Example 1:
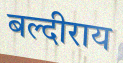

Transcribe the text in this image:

बल्दीराय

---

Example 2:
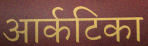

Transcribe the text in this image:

आर्कटिका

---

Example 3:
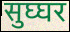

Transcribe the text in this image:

सुघ्घर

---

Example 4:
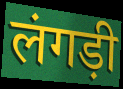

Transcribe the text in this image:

लंगड़ी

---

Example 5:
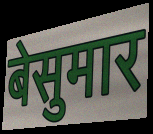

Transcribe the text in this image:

बेसुमार